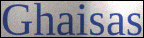
Ghaisas